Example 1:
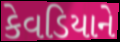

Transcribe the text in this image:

કેવડિયાને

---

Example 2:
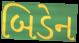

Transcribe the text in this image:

બિડેન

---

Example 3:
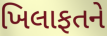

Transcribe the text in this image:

ખિલાફતને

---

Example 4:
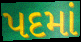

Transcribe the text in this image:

પદમાં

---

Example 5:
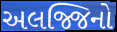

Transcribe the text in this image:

અલજ્જિનો